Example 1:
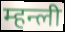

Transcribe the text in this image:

म्हन्ली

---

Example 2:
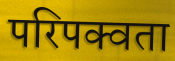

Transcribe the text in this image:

परिपक्वता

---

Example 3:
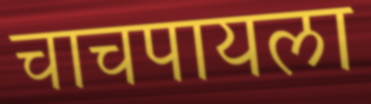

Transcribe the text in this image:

चाचपायला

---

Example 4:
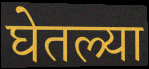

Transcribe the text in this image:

घेतल्या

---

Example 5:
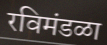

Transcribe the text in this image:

रविमंडळा